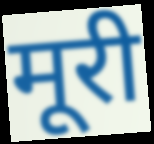
मूरी